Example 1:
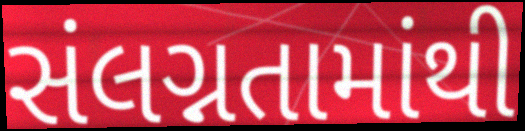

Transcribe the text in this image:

સંલગ્નતામાંથી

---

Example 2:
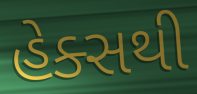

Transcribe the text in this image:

હેક્સથી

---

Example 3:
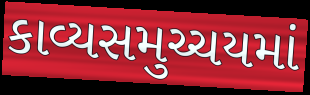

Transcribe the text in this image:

કાવ્યસમુચ્ચયમાં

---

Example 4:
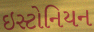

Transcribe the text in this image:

ઇસ્ટોનિયન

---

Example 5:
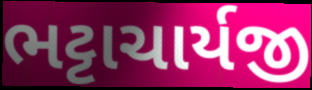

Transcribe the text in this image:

ભટ્ટાચાર્યજી